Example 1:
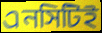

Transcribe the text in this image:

এনসিটিই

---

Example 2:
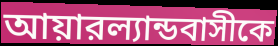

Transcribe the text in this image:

আয়ারল্যান্ডবাসীকে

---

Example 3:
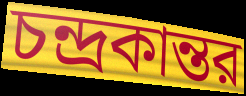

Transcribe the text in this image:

চন্দ্রকান্তর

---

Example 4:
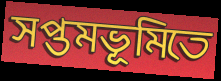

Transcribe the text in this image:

সপ্তমভূমিতে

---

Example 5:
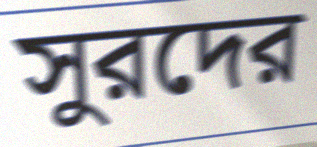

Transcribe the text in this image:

সুরদের